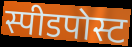
स्पीडपोस्ट